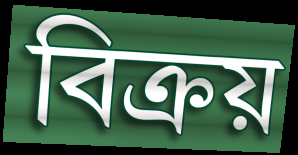
বিক্রয়